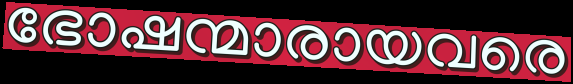
ഭോഷന്മാരായവരെ